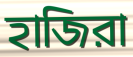
হাজিরা